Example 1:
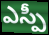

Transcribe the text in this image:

ఎస్పీ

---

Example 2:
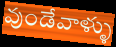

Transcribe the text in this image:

వుండేవాళ్ళు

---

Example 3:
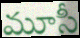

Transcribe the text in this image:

మూసీ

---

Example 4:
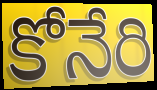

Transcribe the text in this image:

కోనేరి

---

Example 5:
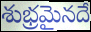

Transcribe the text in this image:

శుభ్రమైనదే